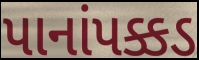
પાનાંપક્કડ